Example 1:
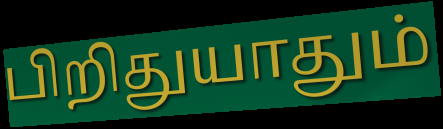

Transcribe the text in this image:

பிறிதுயாதும்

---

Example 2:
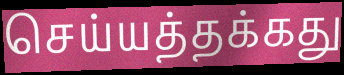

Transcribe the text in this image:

செய்யத்தக்கது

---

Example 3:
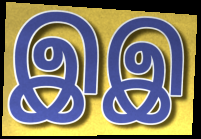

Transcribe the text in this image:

இஇ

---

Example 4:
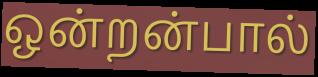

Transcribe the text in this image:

ஒன்றன்பால்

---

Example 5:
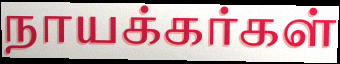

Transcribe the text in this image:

நாயக்கர்கள்